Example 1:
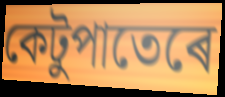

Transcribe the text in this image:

কেটুপাতেৰে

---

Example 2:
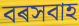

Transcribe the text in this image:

বৰসবাহ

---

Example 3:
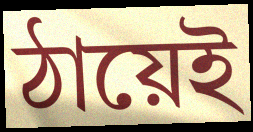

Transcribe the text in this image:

ঠায়েই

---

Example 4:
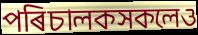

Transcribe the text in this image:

পৰিচালকসকলেও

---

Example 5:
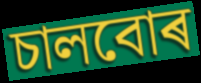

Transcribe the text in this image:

চালবোৰ